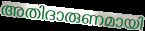
അതിദാരുണമായി